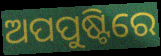
ଅପପୁଷ୍ଟିରେ